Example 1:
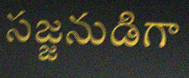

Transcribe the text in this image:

సజ్జనుడిగా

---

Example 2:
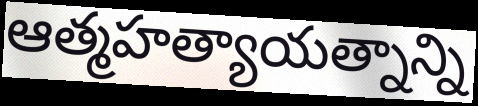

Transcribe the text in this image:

ఆత్మహత్యాయత్నాన్ని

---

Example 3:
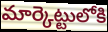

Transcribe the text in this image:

మార్కెట్టులోకి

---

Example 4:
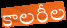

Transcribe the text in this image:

కాలరీల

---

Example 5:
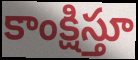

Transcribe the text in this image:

కాంక్షిస్తూ